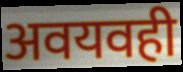
अवयवही